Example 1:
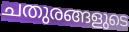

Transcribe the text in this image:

ചതുരങ്ങളുടെ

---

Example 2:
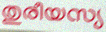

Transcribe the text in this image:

തുരീയസ്യ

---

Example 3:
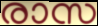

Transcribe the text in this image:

രാസ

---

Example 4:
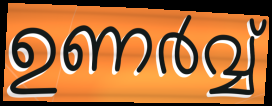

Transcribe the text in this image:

ഉണർവ്വ്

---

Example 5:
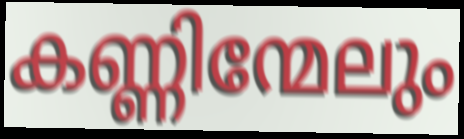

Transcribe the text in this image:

കണ്ണിന്മേലും